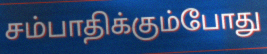
சம்பாதிக்கும்போது